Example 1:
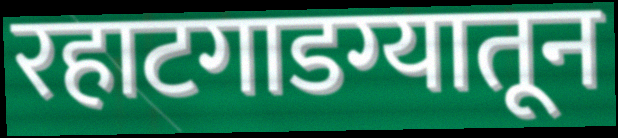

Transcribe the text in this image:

रहाटगाडग्यातून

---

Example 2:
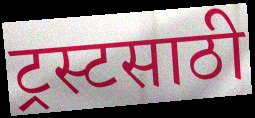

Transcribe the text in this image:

ट्रस्टसाठी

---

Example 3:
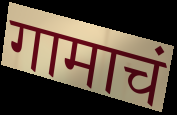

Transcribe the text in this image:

गामाचं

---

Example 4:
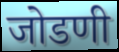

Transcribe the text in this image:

जोडणी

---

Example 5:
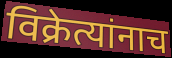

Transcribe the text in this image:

विक्रेत्यांनाच